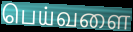
பெய்வளை